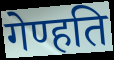
गेण्हति